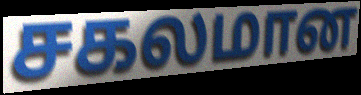
சகலமான